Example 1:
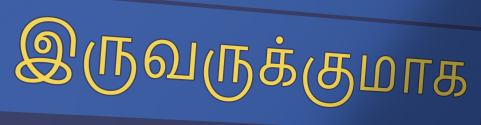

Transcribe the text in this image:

இருவருக்குமாக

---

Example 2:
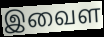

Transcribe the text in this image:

இவைள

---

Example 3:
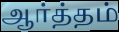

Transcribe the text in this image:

ஆர்த்தம்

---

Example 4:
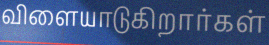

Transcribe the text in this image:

விளையாடுகிறார்கள்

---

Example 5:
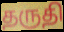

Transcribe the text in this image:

தருதி